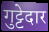
गुट्टेदार